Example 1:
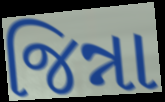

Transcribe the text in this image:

જિન્ના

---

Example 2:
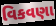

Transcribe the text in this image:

વિકવણા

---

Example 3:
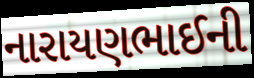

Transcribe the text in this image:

નારાયણભાઈની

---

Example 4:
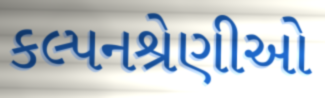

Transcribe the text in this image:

કલ્પનશ્રેણીઓ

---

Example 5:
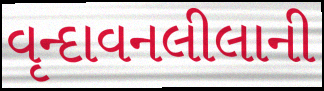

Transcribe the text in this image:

વૃન્દાવનલીલાની